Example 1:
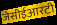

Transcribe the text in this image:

जेसीईआरटी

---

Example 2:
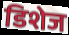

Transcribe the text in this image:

डिशेज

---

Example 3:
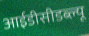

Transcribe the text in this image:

आईडीसीडब्ल्यू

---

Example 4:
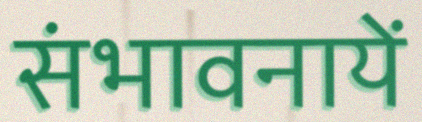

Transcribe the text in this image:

संभावनायें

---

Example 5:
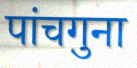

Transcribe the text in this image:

पांचगुना